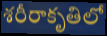
శరీరాకృతిలో